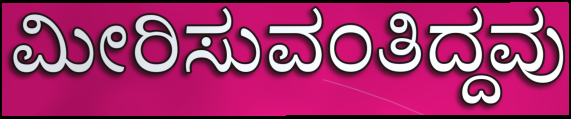
ಮೀರಿಸುವಂತಿದ್ದವು